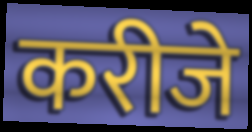
करीजे